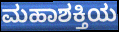
ಮಹಾಶಕ್ತಿಯ